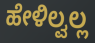
ಹೇಳಿಲ್ವಲ್ಲ